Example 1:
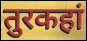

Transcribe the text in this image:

तुरकहां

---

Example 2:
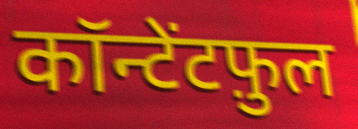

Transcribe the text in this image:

कॉन्टेंटफ़ुल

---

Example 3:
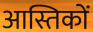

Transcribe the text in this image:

आस्तिकों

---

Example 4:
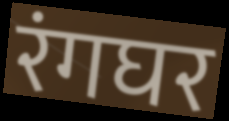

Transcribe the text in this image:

रंगघर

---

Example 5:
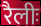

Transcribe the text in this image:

रैलीः